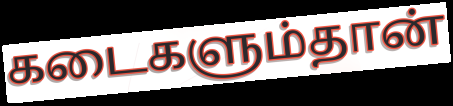
கடைகளும்தான்